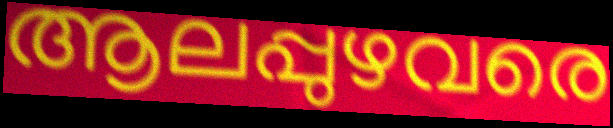
ആലപ്പുഴവരെ